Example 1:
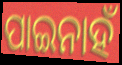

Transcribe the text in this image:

ପାଇନାହଁ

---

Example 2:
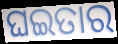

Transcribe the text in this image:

ଘଇତାର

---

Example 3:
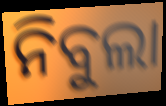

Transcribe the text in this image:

ନିବୁଲା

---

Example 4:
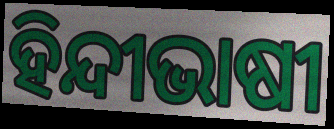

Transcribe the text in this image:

ହିନ୍ଦୀଭାଷୀ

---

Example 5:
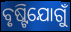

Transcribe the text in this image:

ବୃଷ୍ଟିଯୋଗୁଁ